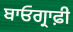
ਬਾਓਗ੍ਰਾਫ਼ੀ